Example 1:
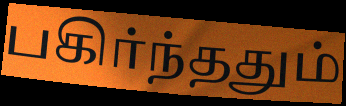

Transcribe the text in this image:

பகிர்ந்ததும்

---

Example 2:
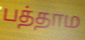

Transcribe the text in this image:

பத்தாம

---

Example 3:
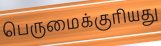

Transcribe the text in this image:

பெருமைக்குரியது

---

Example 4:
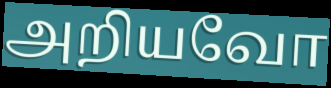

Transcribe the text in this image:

அறியவோ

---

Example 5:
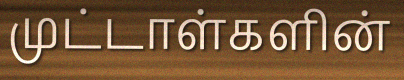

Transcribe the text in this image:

முட்டாள்களின்